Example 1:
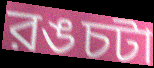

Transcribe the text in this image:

রঙচটা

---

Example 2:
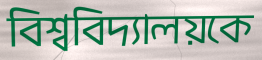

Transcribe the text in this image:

বিশ্ববিদ্যালয়কে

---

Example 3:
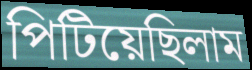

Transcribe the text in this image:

পিটিয়েছিলাম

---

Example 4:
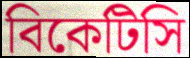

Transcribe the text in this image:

বিকেটিসি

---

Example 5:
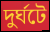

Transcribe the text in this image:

দুর্ঘটে